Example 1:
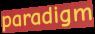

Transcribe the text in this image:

paradigm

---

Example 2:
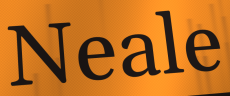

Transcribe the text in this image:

Neale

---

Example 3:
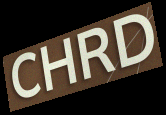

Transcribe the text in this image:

CHRD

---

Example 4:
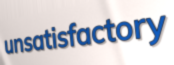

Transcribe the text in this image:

unsatisfactory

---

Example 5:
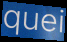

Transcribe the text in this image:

quei